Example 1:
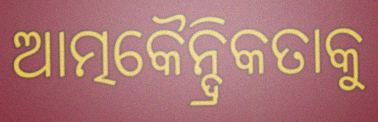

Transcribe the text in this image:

ଆତ୍ମକୈନ୍ଦ୍ରିକତାକୁ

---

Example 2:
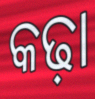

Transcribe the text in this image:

କଢ଼ା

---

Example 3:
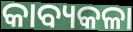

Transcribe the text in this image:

କାବ୍ୟକଳା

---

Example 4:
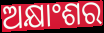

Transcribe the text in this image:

ଅକ୍ଷାଂଶର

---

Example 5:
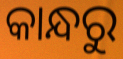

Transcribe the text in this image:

କାନ୍ଧରୁ